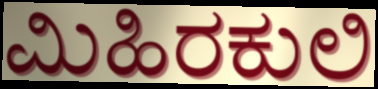
ಮಿಹಿರಕುಲಿ